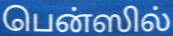
பென்ஸில்